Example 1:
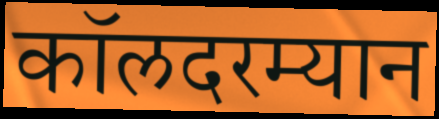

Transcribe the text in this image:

कॉलदरम्यान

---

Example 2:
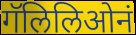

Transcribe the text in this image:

गॅलिलिओनं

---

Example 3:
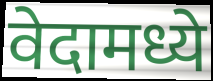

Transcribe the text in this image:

वेदामध्ये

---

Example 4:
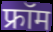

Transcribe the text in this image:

फ्रॉम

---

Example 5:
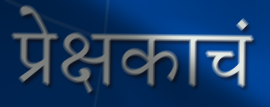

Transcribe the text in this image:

प्रेक्षकाचं